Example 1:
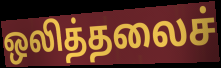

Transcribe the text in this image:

ஒலித்தலைச்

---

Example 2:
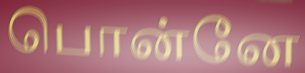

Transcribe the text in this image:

பொன்னே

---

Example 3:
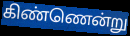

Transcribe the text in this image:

கிண்ணென்று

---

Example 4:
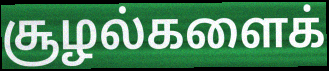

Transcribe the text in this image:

சூழல்களைக்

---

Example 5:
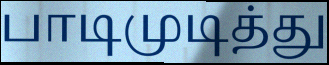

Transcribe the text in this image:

பாடிமுடித்து